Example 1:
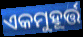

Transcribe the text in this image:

ଏକମୁହୂର୍ତ୍ତ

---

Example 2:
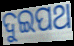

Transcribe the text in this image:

ଦୁଇପଥ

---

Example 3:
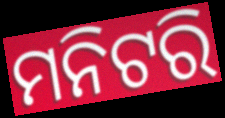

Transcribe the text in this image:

ମନିଟରି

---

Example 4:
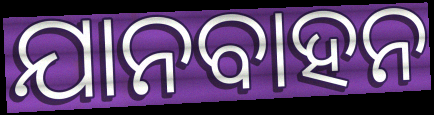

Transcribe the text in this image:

ଯାନବାହନ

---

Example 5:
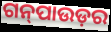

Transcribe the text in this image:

ଗନ୍‍ପାଉଡ଼ର